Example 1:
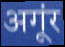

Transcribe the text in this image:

अगूंर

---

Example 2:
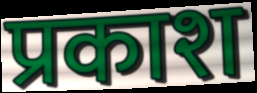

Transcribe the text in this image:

प्रकाश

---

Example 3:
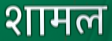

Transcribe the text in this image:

शामल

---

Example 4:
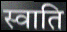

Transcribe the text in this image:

स्वाति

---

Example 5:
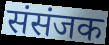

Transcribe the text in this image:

संसंजक